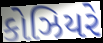
કોઝિયરે